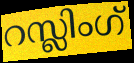
റസ്ലിംഗ്